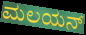
ಮಲಯನ್